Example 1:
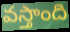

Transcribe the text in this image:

వస్తాంది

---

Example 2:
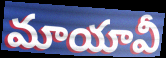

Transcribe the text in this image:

మాయావీ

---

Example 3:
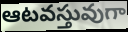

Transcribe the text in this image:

ఆటవస్తువుగా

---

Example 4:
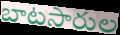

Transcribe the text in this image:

బాటసారుల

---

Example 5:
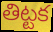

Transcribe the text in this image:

తిట్టక